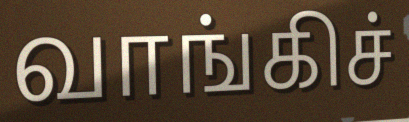
வாங்கிச்